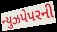
ન્યુઝપેપરની